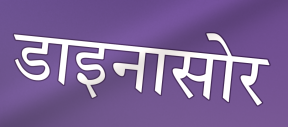
डाइनासोर